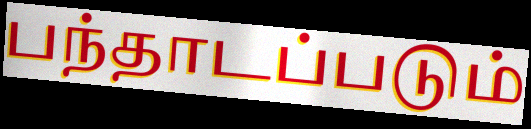
பந்தாடப்படும்